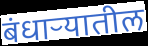
बंधाऱ्यातील